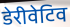
डेरीवेटिव